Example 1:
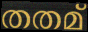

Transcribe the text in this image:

തതമ്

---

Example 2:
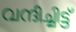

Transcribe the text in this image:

വന്ദിച്ചിട്ട്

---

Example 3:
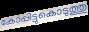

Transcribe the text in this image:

കോപ്പിട്ടുകൊടുത്തു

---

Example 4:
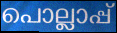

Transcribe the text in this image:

പൊല്ലാപ്പ്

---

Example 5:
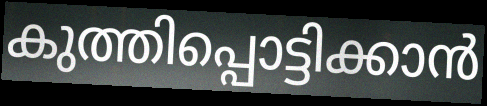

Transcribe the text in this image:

കുത്തിപ്പൊട്ടിക്കാൻ